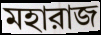
মহারাজ